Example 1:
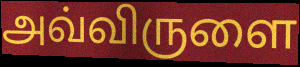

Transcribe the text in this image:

அவ்விருளை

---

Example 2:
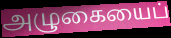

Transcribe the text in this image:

அழுகையைப்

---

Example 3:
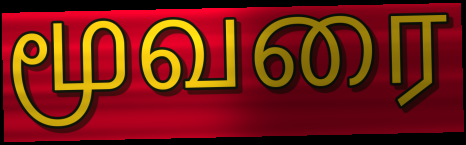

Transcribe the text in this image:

மூவரை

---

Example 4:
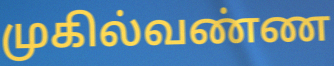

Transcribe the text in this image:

முகில்வண்ண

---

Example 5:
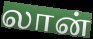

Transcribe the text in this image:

லான்